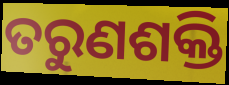
ତରୁଣଶକ୍ତି